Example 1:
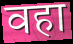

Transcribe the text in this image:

वहा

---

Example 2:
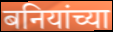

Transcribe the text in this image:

बनियांच्या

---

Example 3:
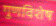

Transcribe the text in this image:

गुणविशेष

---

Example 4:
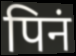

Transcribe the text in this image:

पिनं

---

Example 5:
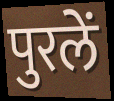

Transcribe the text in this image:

पुरलें